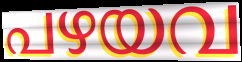
പഴയവ